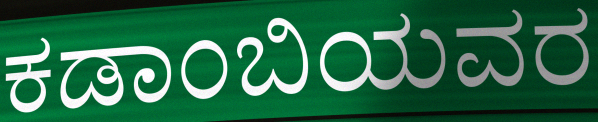
ಕಡಾಂಬಿಯವರ